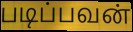
படிப்பவன்